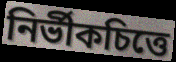
নির্ভীকচিত্তে